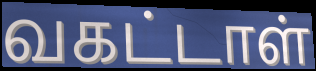
வகட்டாள்